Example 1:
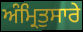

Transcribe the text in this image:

ਅੰਮ੍ਰਿਤੁਸਾਰੇ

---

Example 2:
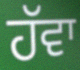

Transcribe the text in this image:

ਹੱਵਾ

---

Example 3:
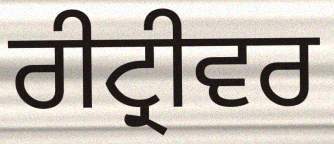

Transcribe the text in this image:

ਰੀਟ੍ਰੀਵਰ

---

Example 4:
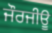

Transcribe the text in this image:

ਜੌਰਜੀਊ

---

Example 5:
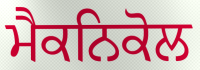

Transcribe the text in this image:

ਮੈਕਨਿਕੋਲ